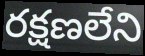
రక్షణలేని